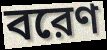
বরেণ